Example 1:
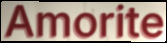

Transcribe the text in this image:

Amorite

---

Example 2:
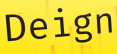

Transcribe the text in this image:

Deign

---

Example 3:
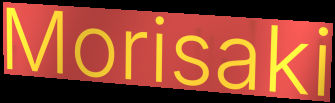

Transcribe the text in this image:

Morisaki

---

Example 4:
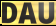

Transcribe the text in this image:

DAU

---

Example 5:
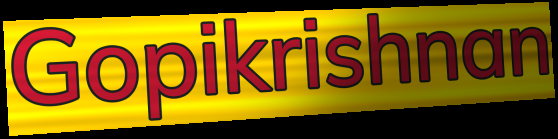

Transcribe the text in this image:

Gopikrishnan